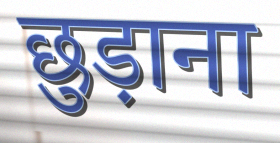
छुड़ाना